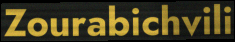
Zourabichvili